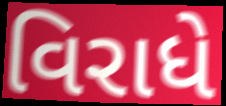
વિરાધે